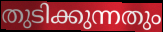
തുടിക്കുന്നതും